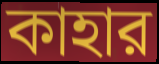
কাহার